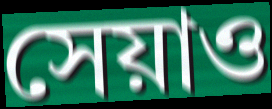
সেয়াও